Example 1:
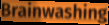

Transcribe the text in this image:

Brainwashing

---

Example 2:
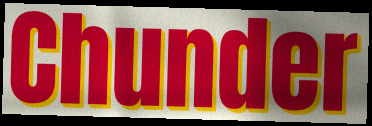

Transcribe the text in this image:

Chunder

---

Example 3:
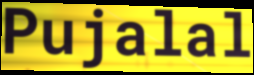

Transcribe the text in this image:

Pujalal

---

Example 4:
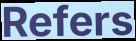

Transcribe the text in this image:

Refers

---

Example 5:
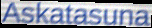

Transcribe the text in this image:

Askatasuna